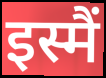
इस्मैं